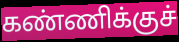
கண்ணிக்குச்